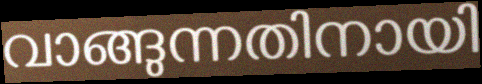
വാങ്ങുന്നതിനായി